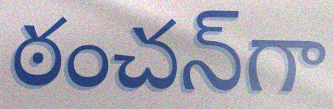
ఠంచన్‌గా